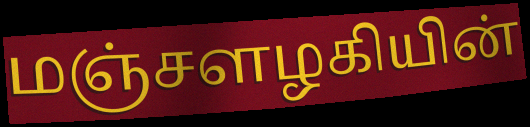
மஞ்சளழகியின்